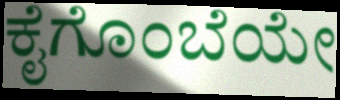
ಕೈಗೊಂಬೆಯೇ